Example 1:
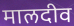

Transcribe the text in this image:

मालदीव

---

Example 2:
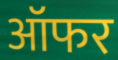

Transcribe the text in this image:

ऑफर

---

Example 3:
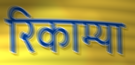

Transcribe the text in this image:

रिकाम्या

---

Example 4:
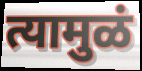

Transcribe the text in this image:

त्यामुळं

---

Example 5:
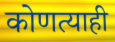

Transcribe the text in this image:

कोणत्याही